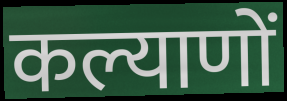
कल्याणों